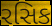
રસિક